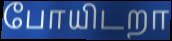
போயிடறா